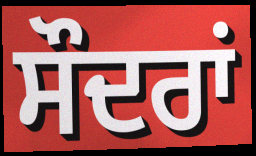
ਸੌਦਰਾਂ